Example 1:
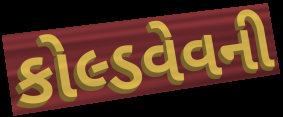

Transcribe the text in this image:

કોલ્ડવેવની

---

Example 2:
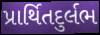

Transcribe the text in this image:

પ્રાર્થિતદુર્લભ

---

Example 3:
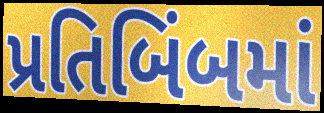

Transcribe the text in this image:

પ્રતિબિંબમાં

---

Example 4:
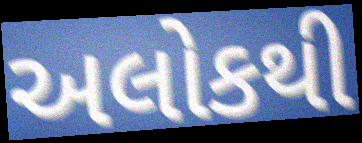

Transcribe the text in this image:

અલોકથી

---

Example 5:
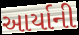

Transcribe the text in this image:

આર્યાની